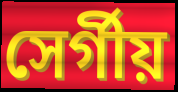
সের্গীয়